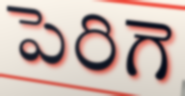
పెరిగె